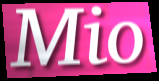
Mio